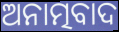
ଅନାତ୍ମବାଦ